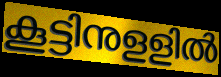
കൂട്ടിനുളളിൽ